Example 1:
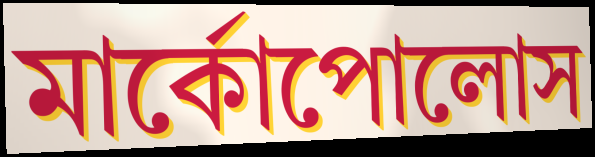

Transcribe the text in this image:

মার্কোপোলোস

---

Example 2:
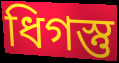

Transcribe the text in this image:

ধিগস্তু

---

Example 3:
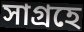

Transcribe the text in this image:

সাগ্রহে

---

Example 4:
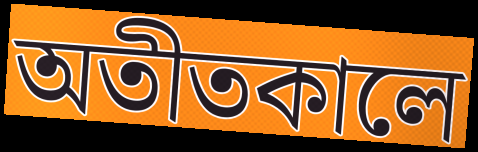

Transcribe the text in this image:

অতীতকালে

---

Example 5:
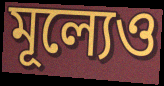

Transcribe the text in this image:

মূল্যেও